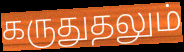
கருதுதலும்